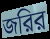
জরির